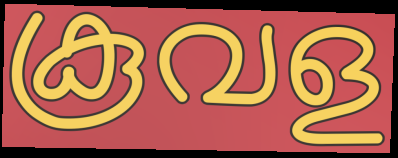
കൂവള